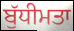
ਬੁੱਧੀਮਤਾ